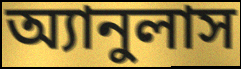
অ্যানুলাস